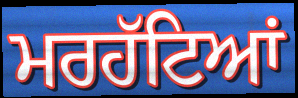
ਮਰਹੱਟਿਆਂ